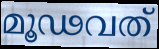
മൂഢവത്